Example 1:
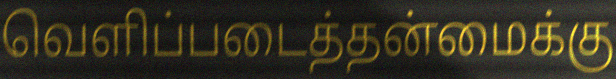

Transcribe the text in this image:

வெளிப்படைத்தன்மைக்கு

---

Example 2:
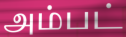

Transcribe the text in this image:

அம்பட்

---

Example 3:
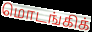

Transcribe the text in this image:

மொடங்கிக்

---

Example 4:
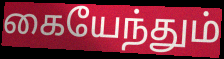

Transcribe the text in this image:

கையேந்தும்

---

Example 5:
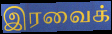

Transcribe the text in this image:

இரவைக்